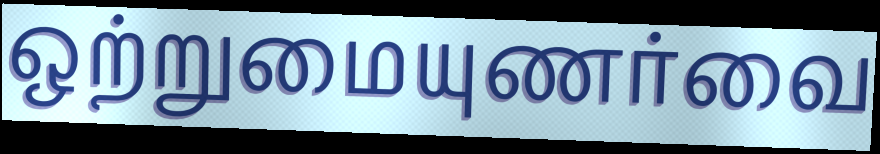
ஒற்றுமையுணர்வை